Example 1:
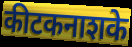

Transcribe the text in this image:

कीटकनाशके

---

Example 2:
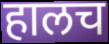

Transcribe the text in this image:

हालच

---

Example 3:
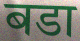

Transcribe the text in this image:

बडा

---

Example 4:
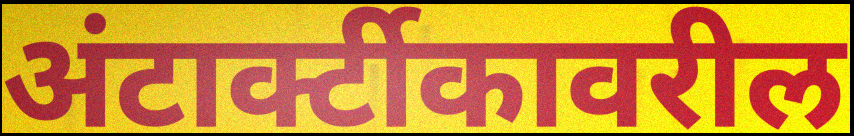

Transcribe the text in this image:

अंटार्क्टीकावरील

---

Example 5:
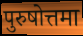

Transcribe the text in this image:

पुरुषोत्तमा